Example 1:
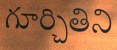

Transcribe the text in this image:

గూర్చితిని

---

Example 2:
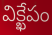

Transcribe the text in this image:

విక్ఖేపం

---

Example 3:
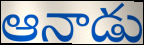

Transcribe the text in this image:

ఆనాడు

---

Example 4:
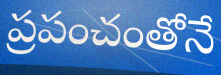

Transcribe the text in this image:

ప్రపంచంతోనే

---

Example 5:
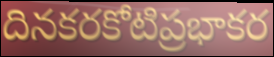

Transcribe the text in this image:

దినకరకోటిప్రభాకర